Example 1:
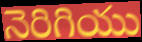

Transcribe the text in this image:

నెరిగియు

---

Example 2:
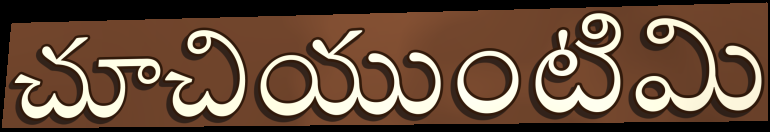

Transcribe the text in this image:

చూచియుంటిమి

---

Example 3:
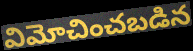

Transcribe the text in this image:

విమోచించబడిన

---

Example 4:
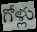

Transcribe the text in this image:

గోళ్లు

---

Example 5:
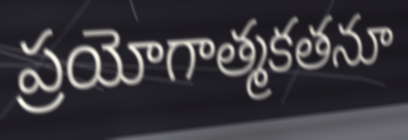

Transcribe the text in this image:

ప్రయోగాత్మకతనూ